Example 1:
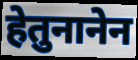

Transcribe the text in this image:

हेतुनानेन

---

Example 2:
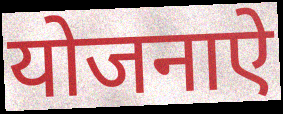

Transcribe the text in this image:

योजनाऐ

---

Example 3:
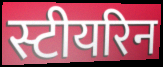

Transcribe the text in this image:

स्टीयरिन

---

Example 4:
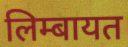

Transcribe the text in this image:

लिम्बायत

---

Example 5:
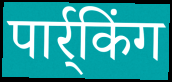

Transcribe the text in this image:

पार्र्किंग